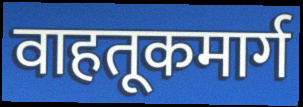
वाहतूकमार्ग